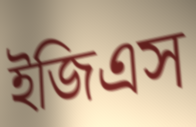
ইজিএস